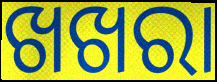
ଖଖରା